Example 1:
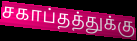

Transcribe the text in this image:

சகாப்தத்துக்கு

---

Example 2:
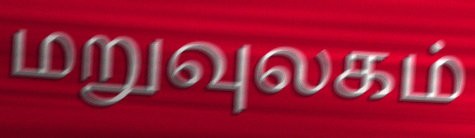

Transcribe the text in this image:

மறுவுலகம்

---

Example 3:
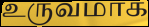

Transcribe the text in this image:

உருவமாக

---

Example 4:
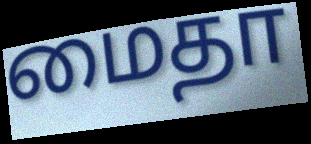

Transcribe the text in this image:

மைதா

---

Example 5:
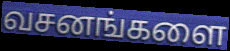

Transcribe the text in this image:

வசனங்களை